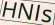
HNIs